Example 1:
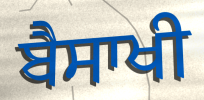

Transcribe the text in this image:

ਬੈਸਾਖੀ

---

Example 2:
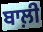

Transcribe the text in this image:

ਬਾਲ਼ੀ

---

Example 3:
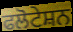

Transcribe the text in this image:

ਫਲੋਟੇਸ਼ਨ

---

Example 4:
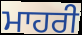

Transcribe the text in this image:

ਮਾਹਰੀ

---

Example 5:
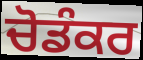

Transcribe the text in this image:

ਚੋਡੰਕਰ